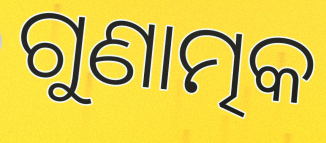
ଗୁଣାତ୍ମକ